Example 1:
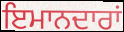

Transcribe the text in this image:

ਇਮਾਨਦਾਰਾਂ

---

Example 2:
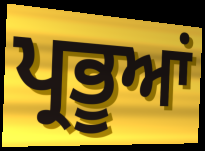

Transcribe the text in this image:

ਪ੍ਰਭੂਆਂ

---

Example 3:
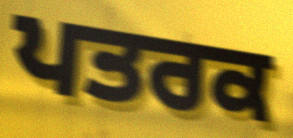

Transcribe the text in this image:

ਪਤਰਕ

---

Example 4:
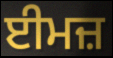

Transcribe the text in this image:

ਈਮਜ਼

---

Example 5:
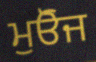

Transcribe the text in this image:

ਮੁਓੋਜ